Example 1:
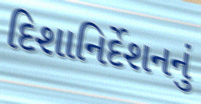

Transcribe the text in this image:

દિશાનિર્દેશનનું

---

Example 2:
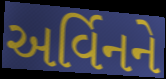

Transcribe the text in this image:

અર્વિનને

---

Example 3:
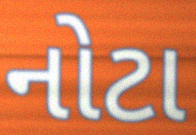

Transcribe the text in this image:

નોટા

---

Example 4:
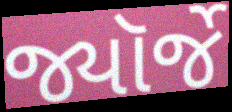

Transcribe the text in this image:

જ્યૉર્જે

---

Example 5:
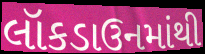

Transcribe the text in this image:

લૉકડાઉનમાંથી